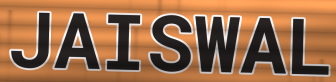
JAISWAL